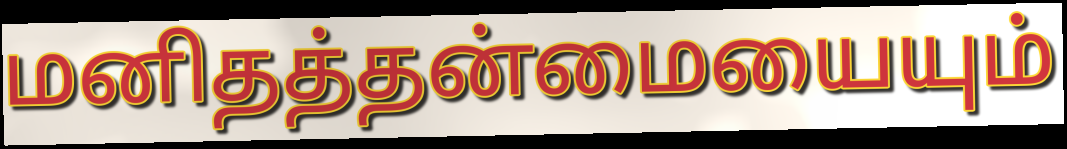
மனிதத்தன்மையையும்